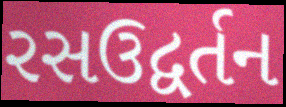
રસઉદ્વર્તન